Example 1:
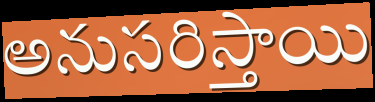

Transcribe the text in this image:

అనుసరిస్తాయి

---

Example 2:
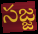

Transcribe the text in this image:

సజ్జ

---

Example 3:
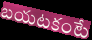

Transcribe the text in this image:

బయటకంటే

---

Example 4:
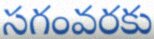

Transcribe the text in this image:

సగంవరకు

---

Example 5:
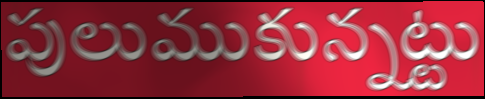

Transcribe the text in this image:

పులుముకున్నట్టు